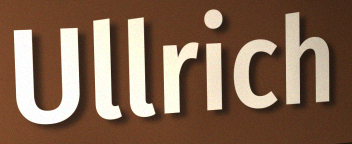
Ullrich